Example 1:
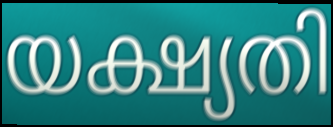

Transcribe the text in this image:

യക്ഷ്യതി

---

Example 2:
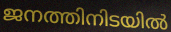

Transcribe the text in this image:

ജനത്തിനിടയിൽ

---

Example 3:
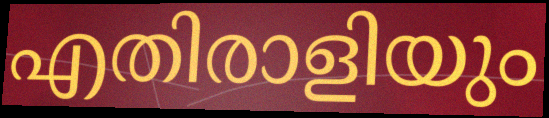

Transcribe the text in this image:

എതിരാളിയും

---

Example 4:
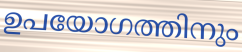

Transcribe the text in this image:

ഉപയോഗത്തിനും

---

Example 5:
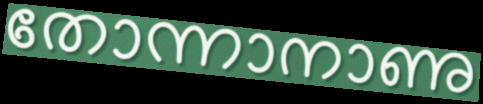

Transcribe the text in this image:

തോന്നാനാണു